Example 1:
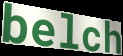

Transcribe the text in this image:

belch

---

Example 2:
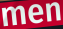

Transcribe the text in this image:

men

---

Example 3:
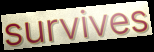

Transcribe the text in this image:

survives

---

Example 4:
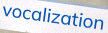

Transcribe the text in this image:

vocalization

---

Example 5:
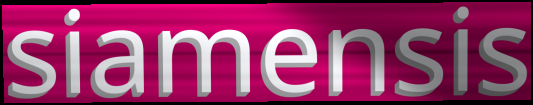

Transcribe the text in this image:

siamensis